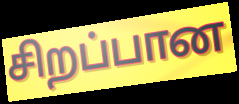
சிறப்பான